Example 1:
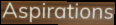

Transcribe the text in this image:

Aspirations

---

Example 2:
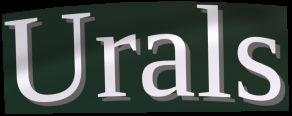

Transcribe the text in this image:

Urals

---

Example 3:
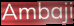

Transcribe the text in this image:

Ambaji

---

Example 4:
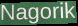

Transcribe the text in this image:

Nagorik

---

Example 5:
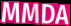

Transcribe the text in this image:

MMDA